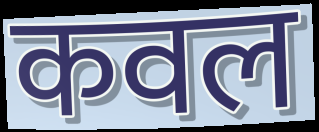
कवल